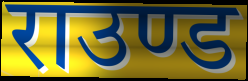
राउण्ड